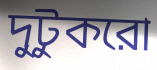
দুটুকরো